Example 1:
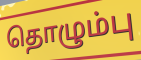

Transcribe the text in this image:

தொழும்பு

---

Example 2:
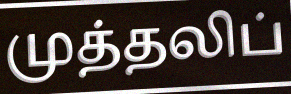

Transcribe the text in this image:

முத்தலிப்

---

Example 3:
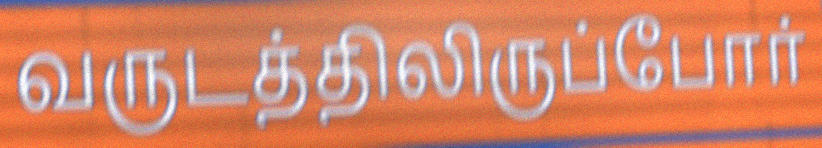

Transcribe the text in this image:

வருடத்திலிருப்போர்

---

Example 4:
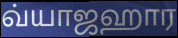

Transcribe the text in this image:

வ்யாஜஹார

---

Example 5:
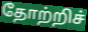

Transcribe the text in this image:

தோற்றிச்